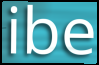
ibe